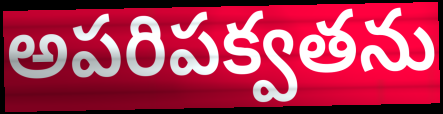
అపరిపక్వతను